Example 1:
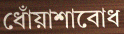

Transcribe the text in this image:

ধোঁয়াশাবোধ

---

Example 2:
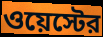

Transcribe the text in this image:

ওয়েস্টের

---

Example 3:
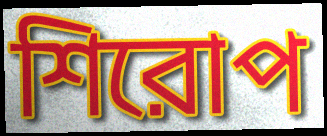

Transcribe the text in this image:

শিরোপ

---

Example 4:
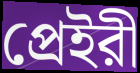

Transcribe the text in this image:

প্রেইরী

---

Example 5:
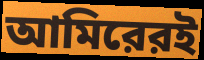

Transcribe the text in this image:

আমিরেরই